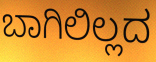
ಬಾಗಿಲಿಲ್ಲದ